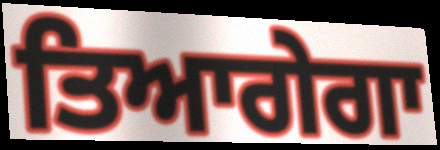
ਤਿਆਗੇਗਾ